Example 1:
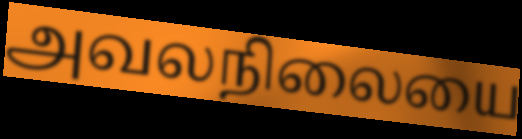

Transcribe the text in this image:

அவலநிலையை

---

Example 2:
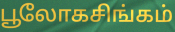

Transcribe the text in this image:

பூலோகசிங்கம்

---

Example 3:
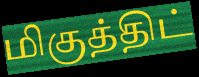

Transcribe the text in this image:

மிகுத்திட்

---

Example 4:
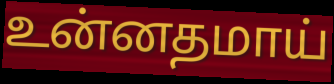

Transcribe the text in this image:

உன்னதமாய்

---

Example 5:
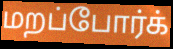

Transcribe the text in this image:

மறப்போர்க்